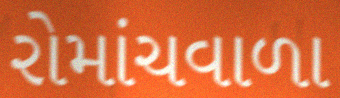
રોમાંચવાળા